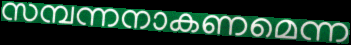
സമ്പന്നനാകണമെന്ന